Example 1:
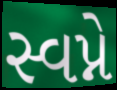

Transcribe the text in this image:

સ્વપ્ને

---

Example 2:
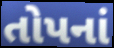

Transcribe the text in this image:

તોપનાં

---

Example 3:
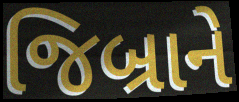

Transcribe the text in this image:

જિબ્રાને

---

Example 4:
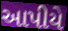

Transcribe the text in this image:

આપીયે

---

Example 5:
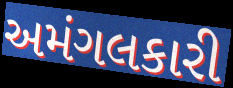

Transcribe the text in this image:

અમંગલકારી